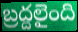
బ్రద్దలైంది